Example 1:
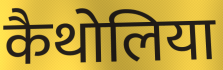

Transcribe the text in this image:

कैथोलिया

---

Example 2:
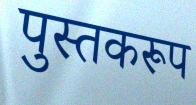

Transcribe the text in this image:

पुस्तकरूप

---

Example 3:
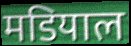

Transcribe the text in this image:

मडियाल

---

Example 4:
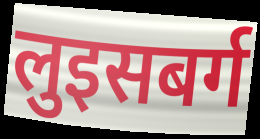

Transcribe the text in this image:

लुइसबर्ग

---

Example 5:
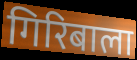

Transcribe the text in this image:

गिरिबाला